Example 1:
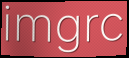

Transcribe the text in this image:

imgrc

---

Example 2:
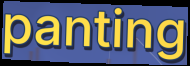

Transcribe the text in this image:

panting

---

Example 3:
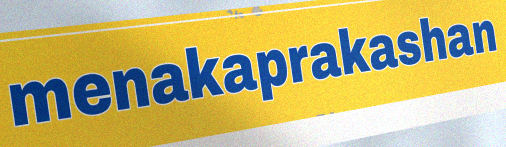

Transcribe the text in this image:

menakaprakashan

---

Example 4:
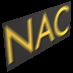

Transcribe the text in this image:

NAC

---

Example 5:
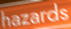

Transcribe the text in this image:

hazards